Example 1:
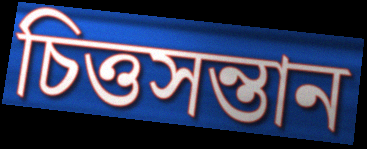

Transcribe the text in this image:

চিত্তসন্তান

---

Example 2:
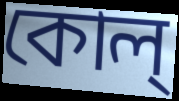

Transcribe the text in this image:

কোল্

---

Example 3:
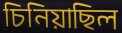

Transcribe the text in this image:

চিনিয়াছিল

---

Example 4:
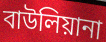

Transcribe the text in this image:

বাউলিয়ানা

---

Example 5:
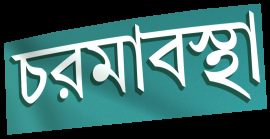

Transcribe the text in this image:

চরমাবস্থা